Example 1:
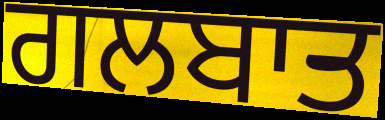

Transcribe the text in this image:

ਗਲਬਾਤ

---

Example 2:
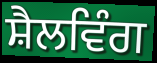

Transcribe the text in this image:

ਸ਼ੈਲਵਿੰਗ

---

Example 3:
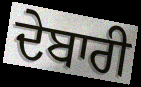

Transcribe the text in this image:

ਦੇਬਾਰੀ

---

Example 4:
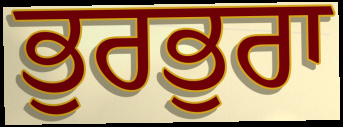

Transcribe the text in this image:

ਭੁਰਭੁਰਾ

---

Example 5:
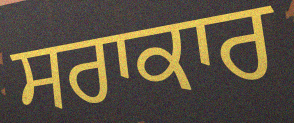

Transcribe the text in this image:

ਸਰਾਕਾਰ